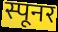
स्पूनर